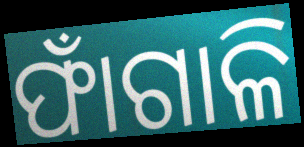
ଫାଁଗାଳି